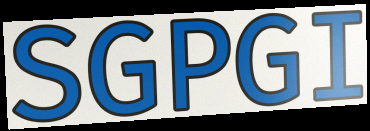
SGPGI